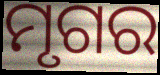
ମୃଗର